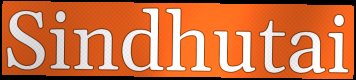
Sindhutai